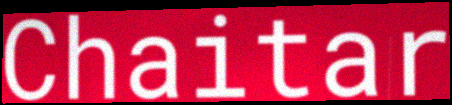
Chaitar